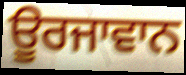
ਊਰਜਾਵਾਨ